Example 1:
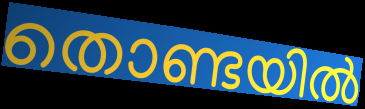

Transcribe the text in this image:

തൊണ്ടയിൽ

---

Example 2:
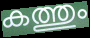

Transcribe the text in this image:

കത്തും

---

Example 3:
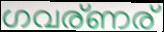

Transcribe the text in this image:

ഗവര്ണര്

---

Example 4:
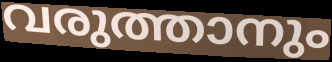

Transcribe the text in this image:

വരുത്താനും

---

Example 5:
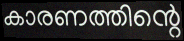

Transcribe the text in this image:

കാരണത്തിന്റെ